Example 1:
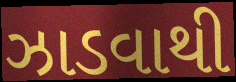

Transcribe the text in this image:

ઝાડવાથી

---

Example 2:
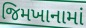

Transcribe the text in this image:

જિમખાનામાં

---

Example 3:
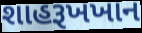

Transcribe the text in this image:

શાહરૂખખાન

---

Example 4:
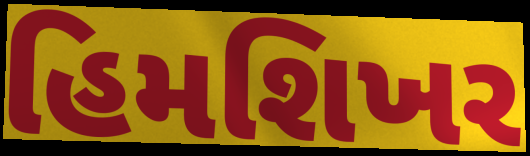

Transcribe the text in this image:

હિમશિખર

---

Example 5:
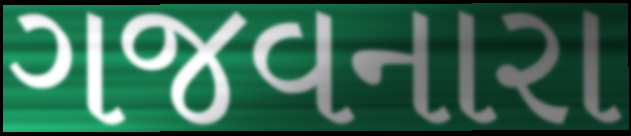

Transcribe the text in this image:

ગજવનારા